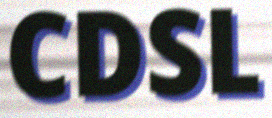
CDSL